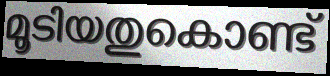
മൂടിയതുകൊണ്ട്